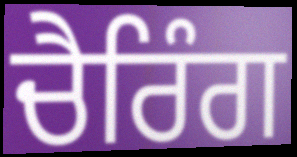
ਚੈਰਿੰਗ